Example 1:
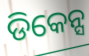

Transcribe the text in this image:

ଡିକେନ୍ସ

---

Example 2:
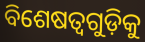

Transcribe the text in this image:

ବିଶେଷତ୍ୱଗୁଡ଼ିକୁ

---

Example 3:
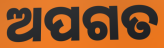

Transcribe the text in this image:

ଅପଗତ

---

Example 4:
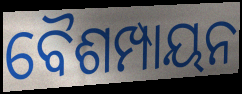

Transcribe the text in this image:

ବୈଶମ୍ପାୟନ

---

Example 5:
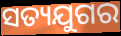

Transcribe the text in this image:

ସତ୍ୟଯୁଗର